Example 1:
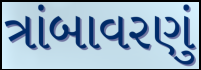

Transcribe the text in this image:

ત્રાંબાવરણું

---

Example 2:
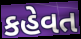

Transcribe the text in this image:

કહેવત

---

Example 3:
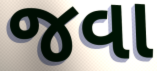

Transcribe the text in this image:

જવા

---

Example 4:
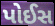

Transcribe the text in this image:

પોઈસ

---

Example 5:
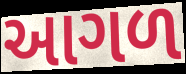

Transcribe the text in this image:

આગળ